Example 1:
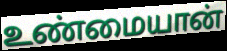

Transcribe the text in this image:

உண்மையான்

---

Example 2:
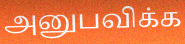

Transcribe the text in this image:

அனுபவிக்க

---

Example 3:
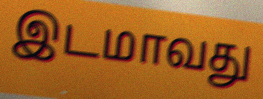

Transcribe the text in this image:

இடமாவது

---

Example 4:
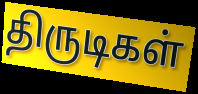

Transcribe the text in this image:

திருடிகள்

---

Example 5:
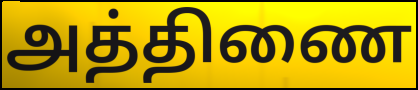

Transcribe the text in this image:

அத்திணை